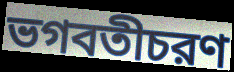
ভগবতীচরণ